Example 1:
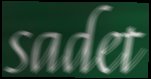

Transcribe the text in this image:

sadet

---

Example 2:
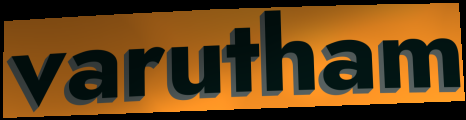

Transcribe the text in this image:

varutham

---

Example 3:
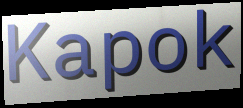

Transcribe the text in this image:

Kapok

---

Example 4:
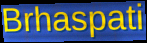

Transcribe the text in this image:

Brhaspati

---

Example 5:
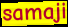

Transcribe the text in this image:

samaji